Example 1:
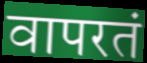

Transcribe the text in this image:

वापरतं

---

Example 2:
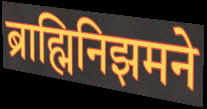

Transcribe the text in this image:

ब्राह्मिनिझमने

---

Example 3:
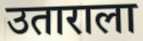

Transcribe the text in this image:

उताराला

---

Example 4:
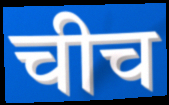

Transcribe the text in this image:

चीच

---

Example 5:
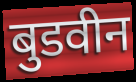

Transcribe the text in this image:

बुडवीन